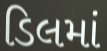
ડિલમાં